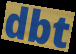
dbt